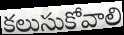
కలుసుకోవాలి